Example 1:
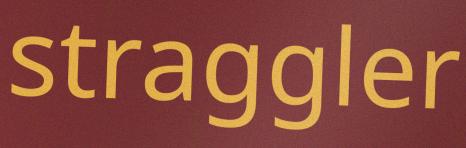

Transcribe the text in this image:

straggler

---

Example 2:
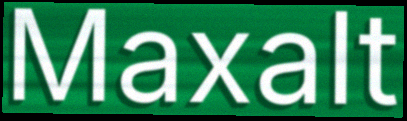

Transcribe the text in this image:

Maxalt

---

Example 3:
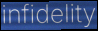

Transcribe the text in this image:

infidelity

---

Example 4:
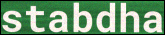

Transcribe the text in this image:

stabdha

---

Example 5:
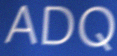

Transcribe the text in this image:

ADQ